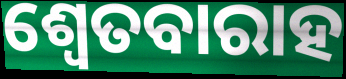
ଶ୍ଵେତବାରାହ